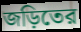
জড়িতের